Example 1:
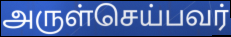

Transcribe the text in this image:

அருள்செய்பவர்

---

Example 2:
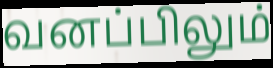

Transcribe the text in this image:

வனப்பிலும்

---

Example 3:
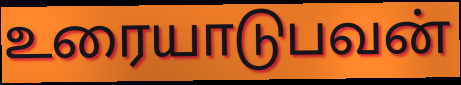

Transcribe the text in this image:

உரையாடுபவன்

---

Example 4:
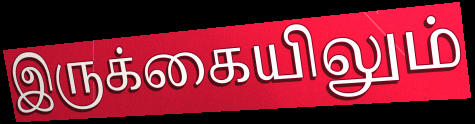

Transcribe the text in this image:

இருக்கையிலும்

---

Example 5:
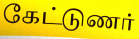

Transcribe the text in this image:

கேட்டுணர்